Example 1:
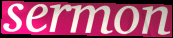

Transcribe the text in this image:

sermon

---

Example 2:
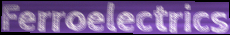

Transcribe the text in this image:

Ferroelectrics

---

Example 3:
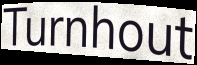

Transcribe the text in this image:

Turnhout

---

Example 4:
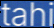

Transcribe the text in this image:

tahi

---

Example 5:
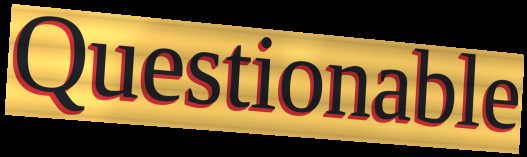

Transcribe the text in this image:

Questionable